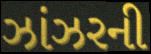
ઝાંઝરની